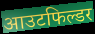
आउटफिल्डर